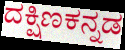
ದಕ್ಷಿಣಕನ್ನಡ